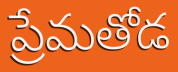
ప్రేమతోడ